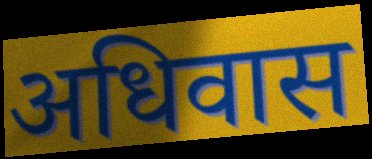
अधिवास